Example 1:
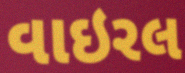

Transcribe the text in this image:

વાઇરલ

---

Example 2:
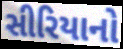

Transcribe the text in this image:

સીરિયાનો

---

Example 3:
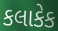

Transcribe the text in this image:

કલાકેક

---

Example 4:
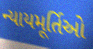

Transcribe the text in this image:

ન્યાયમૂર્તિઓ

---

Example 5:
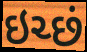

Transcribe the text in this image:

ઇચ્છં